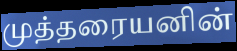
முத்தரையனின்